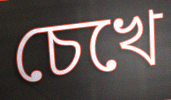
চেখে